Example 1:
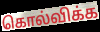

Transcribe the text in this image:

கொல்விக்க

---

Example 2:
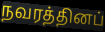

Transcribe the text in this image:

நவரத்தினப்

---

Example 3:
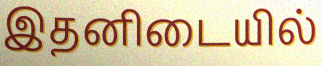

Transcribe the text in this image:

இதனிடையில்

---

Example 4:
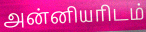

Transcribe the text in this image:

அன்னியரிடம்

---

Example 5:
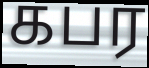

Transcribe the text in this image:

கபர